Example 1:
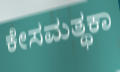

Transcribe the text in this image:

ಕೇಸಮತ್ಥಕಾ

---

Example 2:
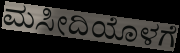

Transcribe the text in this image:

ಮಸೀದಿಯೊಳಗೆ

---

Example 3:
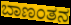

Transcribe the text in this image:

ಬಾಣಂತನ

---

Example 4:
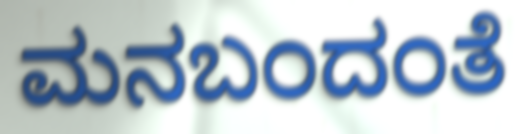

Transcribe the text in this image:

ಮನಬಂದಂತೆ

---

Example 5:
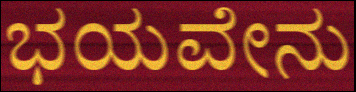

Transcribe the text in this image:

ಭಯವೇನು